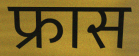
फ्रास